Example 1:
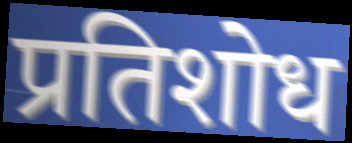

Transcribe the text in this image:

प्रतिशोध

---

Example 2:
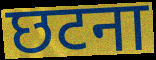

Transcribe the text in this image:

छटना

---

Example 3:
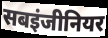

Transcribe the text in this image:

सबइंजीनियर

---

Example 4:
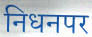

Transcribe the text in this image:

निधनपर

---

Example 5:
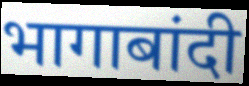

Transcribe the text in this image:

भागाबांदी